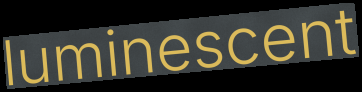
luminescent